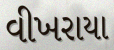
વીખરાયા